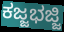
ಕಜ್ಜಭಜ್ಜಿ